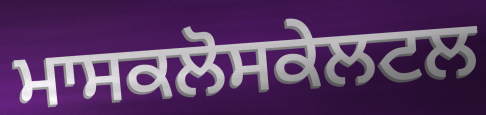
ਮਾਸਕਲੋਸਕੇਲਟਲ